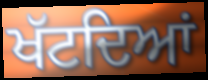
ਖੱਟਦਿਆਂ